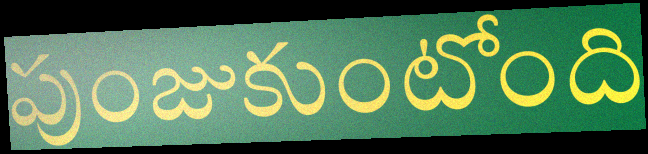
పుంజుకుంటోంది